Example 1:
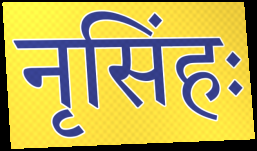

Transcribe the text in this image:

नृसिंहः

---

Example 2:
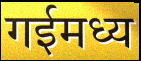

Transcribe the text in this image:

गईमध्य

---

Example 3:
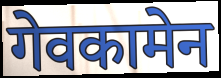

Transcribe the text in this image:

गेवकामेन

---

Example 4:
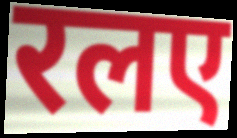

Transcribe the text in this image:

रलए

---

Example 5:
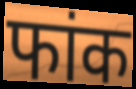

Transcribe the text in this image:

फांक